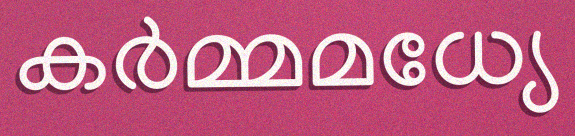
കർമ്മമധ്യേ